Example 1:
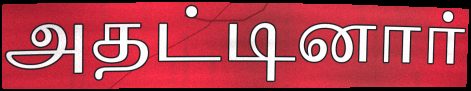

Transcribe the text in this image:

அதட்டினார்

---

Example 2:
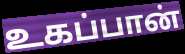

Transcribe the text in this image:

உகப்பான்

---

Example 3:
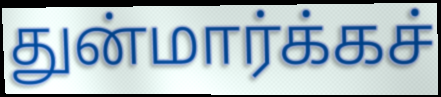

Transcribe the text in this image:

துன்மார்க்கச்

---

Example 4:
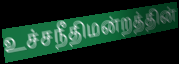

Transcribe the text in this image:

உச்சநீதிமன்றத்தின்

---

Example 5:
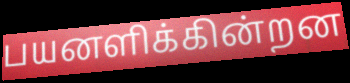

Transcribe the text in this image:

பயனளிக்கின்றன